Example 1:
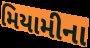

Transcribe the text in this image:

મિયામીના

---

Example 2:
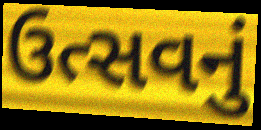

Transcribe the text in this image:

ઉત્સવનું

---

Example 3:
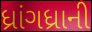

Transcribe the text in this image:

ધ્રાંગધ્રાની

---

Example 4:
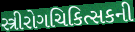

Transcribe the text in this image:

સ્ત્રીરોગચિકિત્સકની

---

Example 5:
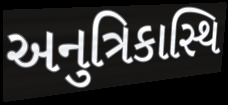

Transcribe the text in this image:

અનુત્રિકાસ્થિ